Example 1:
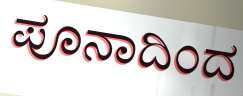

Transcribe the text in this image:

ಪೂನಾದಿಂದ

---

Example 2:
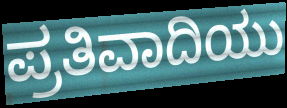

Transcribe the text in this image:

ಪ್ರತಿವಾದಿಯು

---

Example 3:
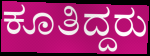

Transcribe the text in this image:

ಕೂತಿದ್ದರು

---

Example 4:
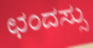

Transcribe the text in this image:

ಛಂದಸ್ಸು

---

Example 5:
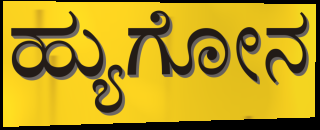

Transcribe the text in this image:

ಹ್ಯುಗೋನ